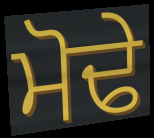
ਮੋਢੇ